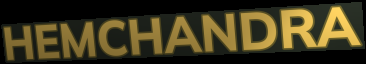
HEMCHANDRA